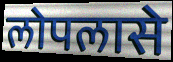
लोपलासे